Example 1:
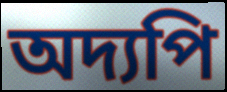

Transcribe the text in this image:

অদ্যপি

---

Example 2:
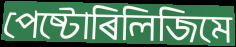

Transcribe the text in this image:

পেষ্টোৰিলিজিমে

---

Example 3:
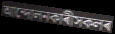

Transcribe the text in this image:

আন্দোলনকাৰীসকলৰ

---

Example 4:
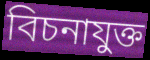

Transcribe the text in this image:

বিচনাযুক্ত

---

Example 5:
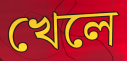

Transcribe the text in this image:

খেলে